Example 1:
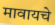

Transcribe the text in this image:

मावायचे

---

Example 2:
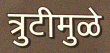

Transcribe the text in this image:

त्रुटीमुळे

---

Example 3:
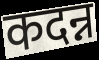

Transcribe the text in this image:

कदन्न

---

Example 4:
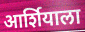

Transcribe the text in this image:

आर्शियाला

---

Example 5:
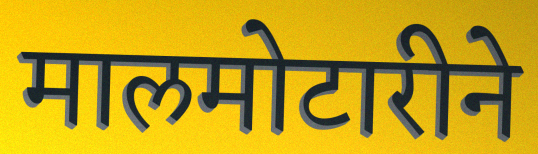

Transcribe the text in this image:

मालमोटारीने